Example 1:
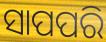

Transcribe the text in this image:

ସାପପରି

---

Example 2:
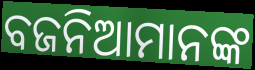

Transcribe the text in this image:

ବଜନିଆମାନଙ୍କ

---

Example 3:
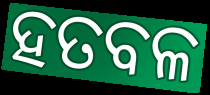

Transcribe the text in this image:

ହତବଳ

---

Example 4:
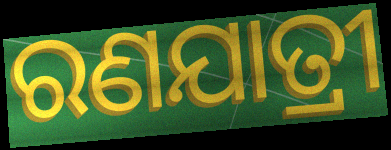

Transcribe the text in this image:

ରଣଯାତ୍ରୀ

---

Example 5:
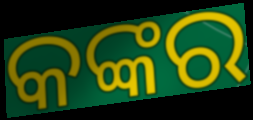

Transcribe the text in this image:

କଙ୍କର